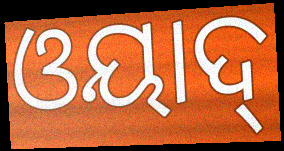
ଓୟାଦ୍